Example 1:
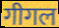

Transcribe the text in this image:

गीगल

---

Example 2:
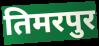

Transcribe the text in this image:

तिमरपुर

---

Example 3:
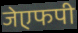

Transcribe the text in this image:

जेएफपी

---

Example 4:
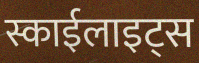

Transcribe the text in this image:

स्काईलाइट्स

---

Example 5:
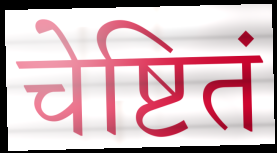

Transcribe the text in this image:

चेष्टितं